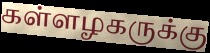
கள்ளழகருக்கு